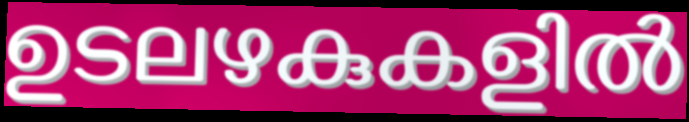
ഉടലഴകുകളിൽ